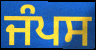
ਜੰਪਸ